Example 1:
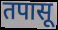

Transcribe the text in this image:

तपासू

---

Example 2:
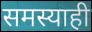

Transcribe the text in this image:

समस्याही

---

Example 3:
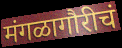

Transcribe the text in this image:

मंगळागौरीचं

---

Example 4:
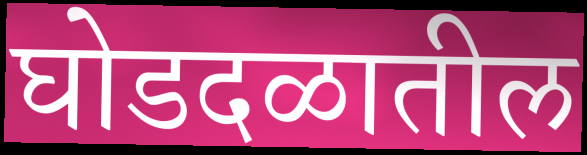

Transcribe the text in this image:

घोडदळातील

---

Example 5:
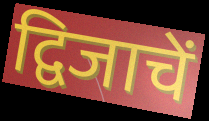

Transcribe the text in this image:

द्विजाचें